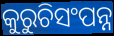
କୁରୁଚିସଂପନ୍ନ